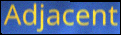
Adjacent